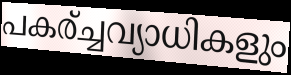
പകര്ച്ചവ്യാധികളും